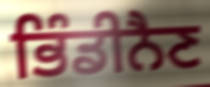
ਭਿੰਡੀਨੈਣ